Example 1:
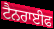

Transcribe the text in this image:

ਟੈਨਰਾਈਫ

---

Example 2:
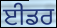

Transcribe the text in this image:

ਈਡਰ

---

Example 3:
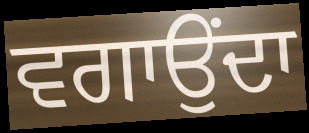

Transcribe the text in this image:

ਵਗਾਉਂਦਾ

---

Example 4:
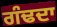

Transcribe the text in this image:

ਗੰਢਦਾ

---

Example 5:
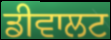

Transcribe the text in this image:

ਡੀਵਾਲਟ